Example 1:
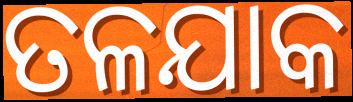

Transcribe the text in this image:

ତଳଯାକ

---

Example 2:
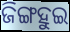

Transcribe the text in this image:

ଜିଙ୍ଗହୁଇ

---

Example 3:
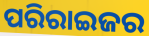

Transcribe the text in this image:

ପରିରାଇଜର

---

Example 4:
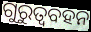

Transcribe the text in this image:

ଗୁରୁତ୍ୱବହନ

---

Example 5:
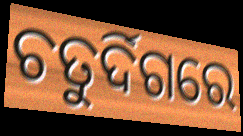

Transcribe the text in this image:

ଚତୁର୍ଦିଗରେ